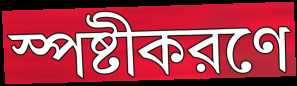
স্পষ্টীকরণে